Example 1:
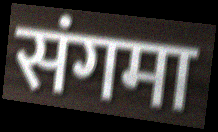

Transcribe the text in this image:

संगमा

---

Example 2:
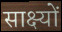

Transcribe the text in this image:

साक्ष्यों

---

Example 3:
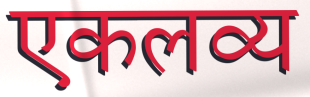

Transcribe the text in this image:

एकलव्य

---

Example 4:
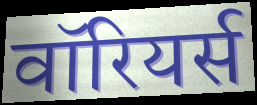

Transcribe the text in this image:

वॉरियर्स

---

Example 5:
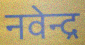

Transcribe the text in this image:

नवेन्द्र